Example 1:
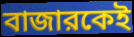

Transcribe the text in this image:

বাজারকেই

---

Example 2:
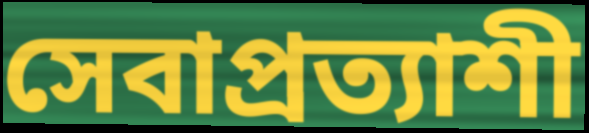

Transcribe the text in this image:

সেবাপ্রত্যাশী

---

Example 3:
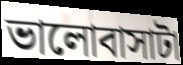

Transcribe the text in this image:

ভালোবাসাটা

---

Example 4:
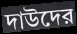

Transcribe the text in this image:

দাউদের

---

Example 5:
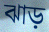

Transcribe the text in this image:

ঝাড়